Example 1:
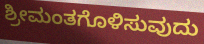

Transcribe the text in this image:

ಶ್ರೀಮಂತಗೊಳಿಸುವುದು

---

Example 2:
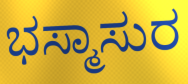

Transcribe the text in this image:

ಭಸ್ಮಾಸುರ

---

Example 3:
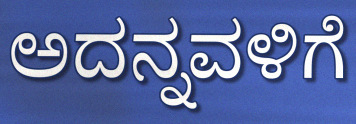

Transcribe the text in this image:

ಅದನ್ನವಳಿಗೆ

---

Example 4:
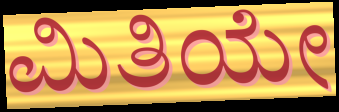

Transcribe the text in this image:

ಮಿತಿಯೇ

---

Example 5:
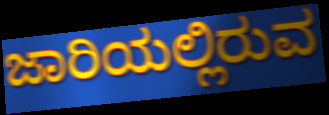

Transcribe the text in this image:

ಜಾರಿಯಲ್ಲಿರುವ